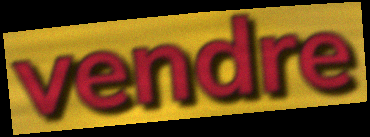
vendre